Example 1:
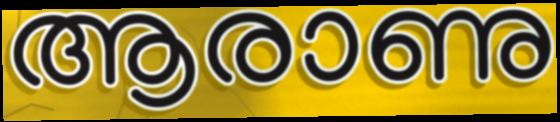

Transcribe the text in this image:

ആരാണു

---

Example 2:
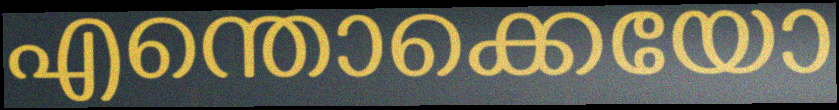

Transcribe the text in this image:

എന്തൊക്കെയോ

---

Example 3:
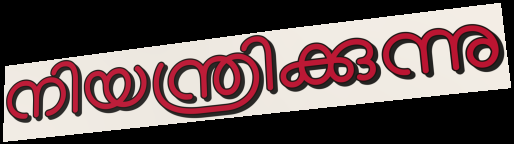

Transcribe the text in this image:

നിയന്ത്രിക്കുന്നു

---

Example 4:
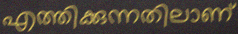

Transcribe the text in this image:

എത്തിക്കുന്നതിലാണ്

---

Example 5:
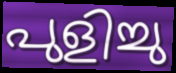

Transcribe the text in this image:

പുളിച്ചു